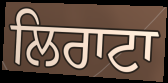
ਲਿਰਾਟਾ